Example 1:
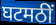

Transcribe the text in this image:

घटमठीं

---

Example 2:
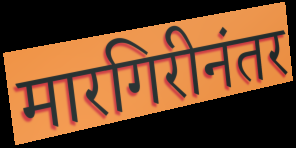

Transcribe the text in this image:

मारगिरीनंतर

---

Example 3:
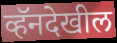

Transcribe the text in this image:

व्हॅनदेखील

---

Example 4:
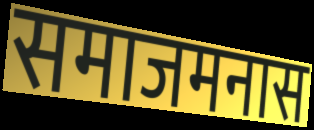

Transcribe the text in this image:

समाजमनास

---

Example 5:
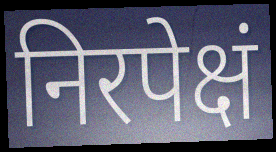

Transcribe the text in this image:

निरपेक्षं